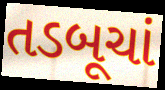
તડબૂચાં